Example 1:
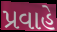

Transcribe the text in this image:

પ્રવાહે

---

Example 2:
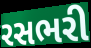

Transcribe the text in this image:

રસભરી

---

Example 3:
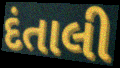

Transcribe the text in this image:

દંતાલી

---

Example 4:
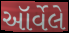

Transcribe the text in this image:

ઑર્વેલે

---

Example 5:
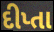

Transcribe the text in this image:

દીપ્તા